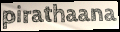
pirathaana